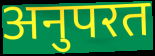
अनुपरत